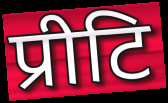
प्रीटि